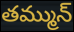
తమ్మున్